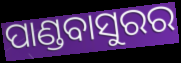
ପାଣ୍ଡବାସୁରର